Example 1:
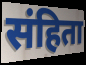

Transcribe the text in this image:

संहिता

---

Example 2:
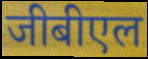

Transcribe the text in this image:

जीबीएल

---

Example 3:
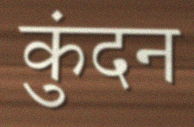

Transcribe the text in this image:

कुंदन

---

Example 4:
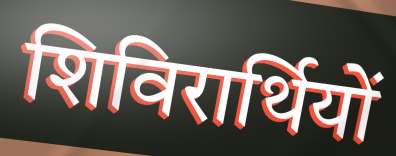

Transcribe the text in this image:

शिविरार्थियों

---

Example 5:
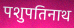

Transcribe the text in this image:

पशुपतिनाथ